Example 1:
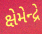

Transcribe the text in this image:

ક્ષેમેન્દ્રે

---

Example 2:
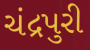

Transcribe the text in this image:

ચંદ્રપુરી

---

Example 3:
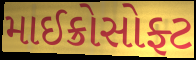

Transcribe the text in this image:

માઈક્રોસોફ્ટ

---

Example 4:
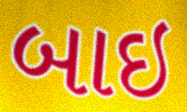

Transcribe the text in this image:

બાઇ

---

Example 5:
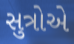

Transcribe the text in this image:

સુત્રોએ